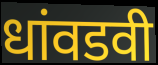
धांवडवी